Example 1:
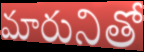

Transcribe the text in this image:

మారునితో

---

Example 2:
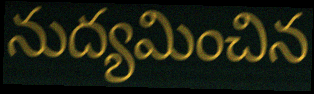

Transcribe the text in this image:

నుద్యమించిన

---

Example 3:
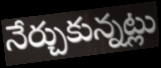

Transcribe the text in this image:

నేర్చుకున్నట్లు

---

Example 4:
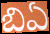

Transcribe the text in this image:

బిఏ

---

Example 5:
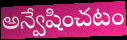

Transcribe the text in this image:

అన్వేషించటం